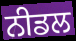
ਨੀਡਲ